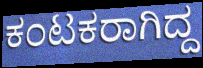
ಕಂಟಕರಾಗಿದ್ದ